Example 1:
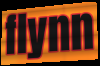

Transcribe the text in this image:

flynn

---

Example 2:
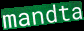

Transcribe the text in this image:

mandta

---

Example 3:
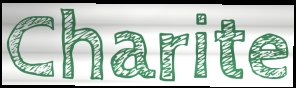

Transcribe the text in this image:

Charite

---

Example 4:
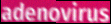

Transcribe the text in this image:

adenovirus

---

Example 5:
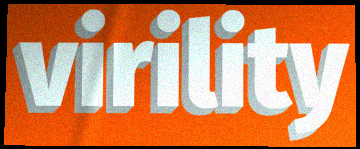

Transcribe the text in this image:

virility